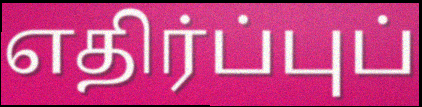
எதிர்ப்புப்